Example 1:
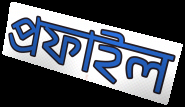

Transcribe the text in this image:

প্ৰফাইল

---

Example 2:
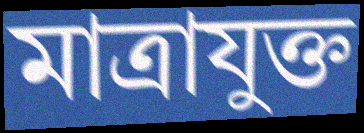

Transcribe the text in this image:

মাত্ৰাযুক্ত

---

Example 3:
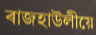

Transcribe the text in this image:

ৰাজহাউলীয়ে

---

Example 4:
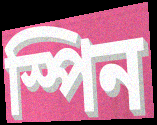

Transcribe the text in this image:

স্পিন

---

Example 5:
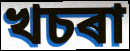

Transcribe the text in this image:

খচৰা